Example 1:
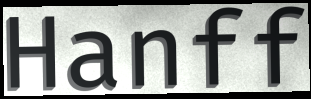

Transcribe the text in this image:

Hanff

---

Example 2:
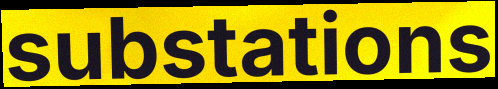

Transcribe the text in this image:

substations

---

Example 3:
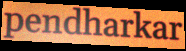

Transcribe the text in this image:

pendharkar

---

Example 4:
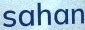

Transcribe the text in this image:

sahan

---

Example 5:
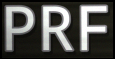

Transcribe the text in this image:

PRF